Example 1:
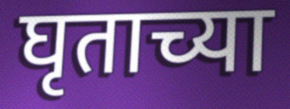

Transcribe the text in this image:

घृताच्या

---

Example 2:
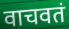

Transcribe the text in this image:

वाचवतं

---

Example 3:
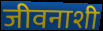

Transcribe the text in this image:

जीवनाशी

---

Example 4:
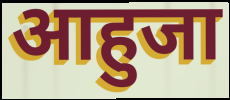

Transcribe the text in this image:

आहुजा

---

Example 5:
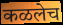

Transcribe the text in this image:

कळलेच